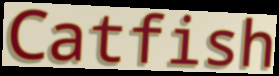
Catfish